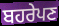
ਬਹਰੇਪਣ